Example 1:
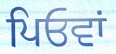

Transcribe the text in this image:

ਪਿਓਵਾਂ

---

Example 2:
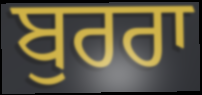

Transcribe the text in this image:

ਬੁਰਰਾ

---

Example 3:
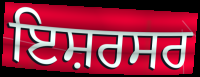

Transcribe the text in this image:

ਇਸ਼ਰਸਰ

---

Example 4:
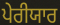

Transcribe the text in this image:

ਪੇਰੀਯਾਰ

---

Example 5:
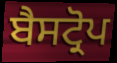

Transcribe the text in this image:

ਬੈਸਟ੍ਰੋਪ